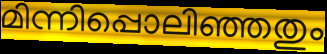
മിന്നിപ്പൊലിഞ്ഞതും